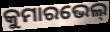
କୁମାରଭେଲ୍